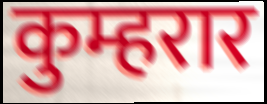
कुम्हरार